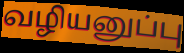
வழியனுப்பு